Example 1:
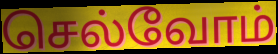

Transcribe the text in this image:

செல்வோம்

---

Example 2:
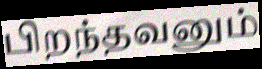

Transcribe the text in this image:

பிறந்தவனும்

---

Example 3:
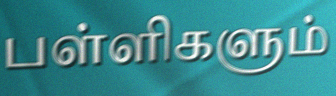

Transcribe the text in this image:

பள்ளிகளும்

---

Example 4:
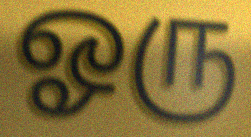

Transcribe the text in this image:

ஓரு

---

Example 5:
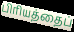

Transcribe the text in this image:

பிரியத்தைப்